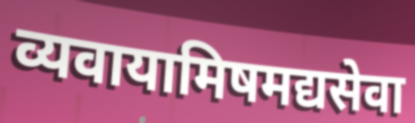
व्यवायामिषमद्यसेवा